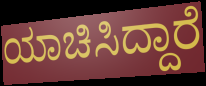
ಯಾಚಿಸಿದ್ದಾರೆ